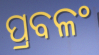
ପ୍ରବଳଂ